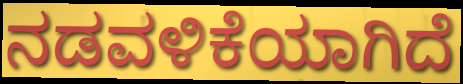
ನಡವಳಿಕೆಯಾಗಿದೆ